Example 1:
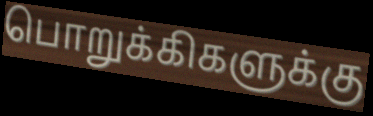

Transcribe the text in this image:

பொறுக்கிகளுக்கு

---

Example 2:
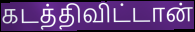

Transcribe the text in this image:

கடத்திவிட்டான்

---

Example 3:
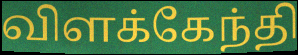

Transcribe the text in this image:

விளக்கேந்தி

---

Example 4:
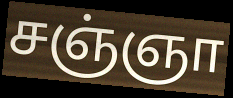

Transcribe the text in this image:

சஞ்ஞா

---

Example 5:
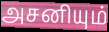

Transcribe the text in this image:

அசனியும்